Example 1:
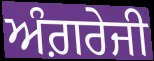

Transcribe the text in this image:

ਅੰਗ਼ਰੇਜੀ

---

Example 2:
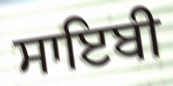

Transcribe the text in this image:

ਸਾਇਬੀ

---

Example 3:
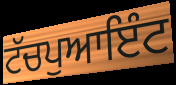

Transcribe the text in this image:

ਟੱਚਪੁਆਇੰਟ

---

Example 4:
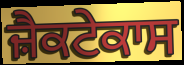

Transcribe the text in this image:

ਜ਼ੈਕਟੇਕਾਸ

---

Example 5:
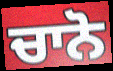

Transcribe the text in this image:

ਚਾਨੋ